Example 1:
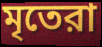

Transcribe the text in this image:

মৃতেরা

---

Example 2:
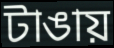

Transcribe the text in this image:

টাঙায়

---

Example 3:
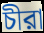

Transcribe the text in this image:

চীরা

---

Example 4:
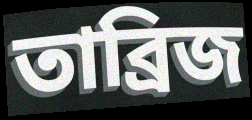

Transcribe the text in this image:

তাব্রিজ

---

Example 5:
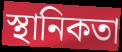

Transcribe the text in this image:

স্থানিকতা